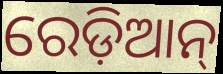
ରେଡ଼ିଆନ୍